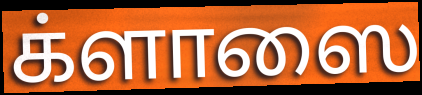
க்ளாஸை